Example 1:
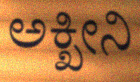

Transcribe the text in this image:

ಅಕ್ಖೀನಿ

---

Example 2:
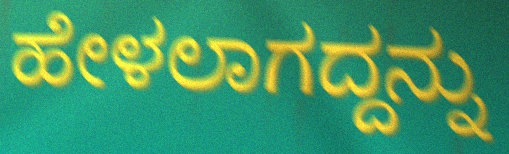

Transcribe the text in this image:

ಹೇಳಲಾಗದ್ದನ್ನು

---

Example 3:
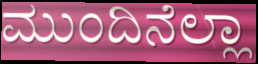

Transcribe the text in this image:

ಮುಂದಿನೆಲ್ಲಾ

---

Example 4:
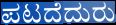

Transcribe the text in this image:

ಪಟದೆದುರು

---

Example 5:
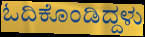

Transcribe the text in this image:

ಓದಿಕೊಂಡಿದ್ದಳು